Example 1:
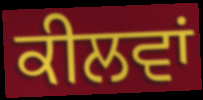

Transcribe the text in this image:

ਕੀਲਵਾਂ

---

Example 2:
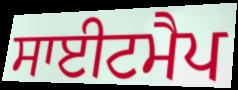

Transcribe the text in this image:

ਸਾਈਟਮੈਪ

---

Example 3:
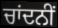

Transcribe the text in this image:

ਚਾਂਦਨੀਂ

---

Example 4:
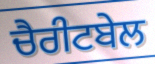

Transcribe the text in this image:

ਚੈਰੀਟਬੇਲ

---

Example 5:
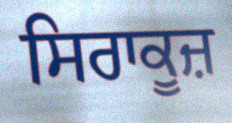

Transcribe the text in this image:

ਸਿਰਾਕੂਜ਼